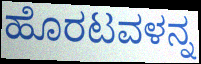
ಹೊರಟವಳನ್ನ